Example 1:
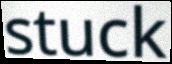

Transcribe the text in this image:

stuck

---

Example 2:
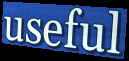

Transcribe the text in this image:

useful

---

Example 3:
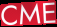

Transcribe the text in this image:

CME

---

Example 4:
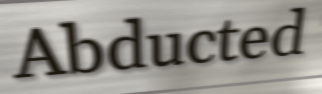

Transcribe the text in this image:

Abducted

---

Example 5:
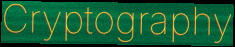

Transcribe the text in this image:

Cryptography